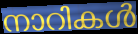
നാറികൾ